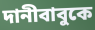
দানীবাবুকে